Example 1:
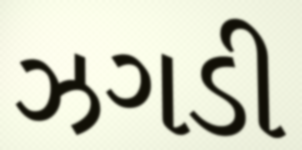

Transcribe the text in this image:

ઝગડી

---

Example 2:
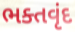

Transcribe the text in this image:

ભક્તવૃંદ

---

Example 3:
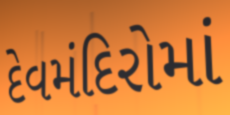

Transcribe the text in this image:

દેવમંદિરોમાં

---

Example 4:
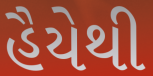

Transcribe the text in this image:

હૈયેથી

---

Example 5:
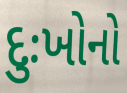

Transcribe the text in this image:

દુઃખોનો